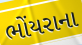
ભોંયરાના